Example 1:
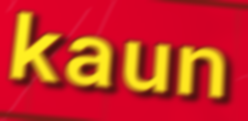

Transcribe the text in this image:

kaun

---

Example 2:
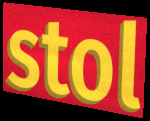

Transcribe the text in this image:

stol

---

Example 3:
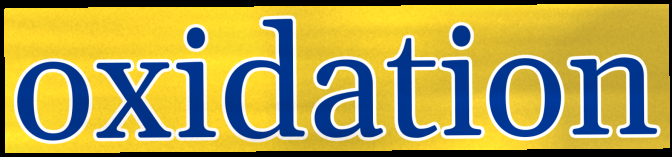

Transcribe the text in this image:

oxidation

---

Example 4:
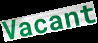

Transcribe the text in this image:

Vacant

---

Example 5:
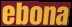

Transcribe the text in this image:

ebona